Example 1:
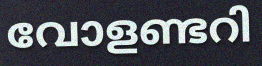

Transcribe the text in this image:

വോളണ്ടറി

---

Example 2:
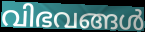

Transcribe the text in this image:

വിഭവങ്ങൾ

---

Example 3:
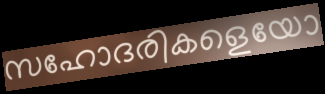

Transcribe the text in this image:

സഹോദരികളെയോ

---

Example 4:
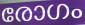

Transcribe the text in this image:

രോഗം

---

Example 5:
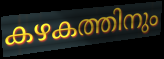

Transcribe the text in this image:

കഴകത്തിനും